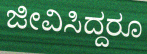
ಜೀವಿಸಿದ್ದರೂ